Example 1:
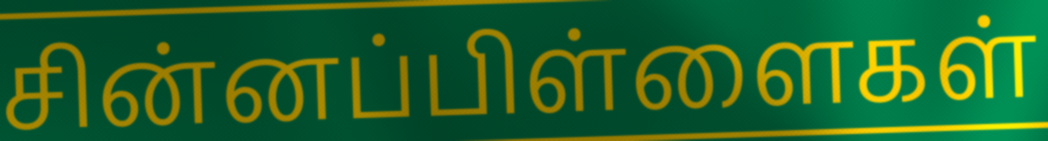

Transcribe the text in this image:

சின்னப்பிள்ளைகள்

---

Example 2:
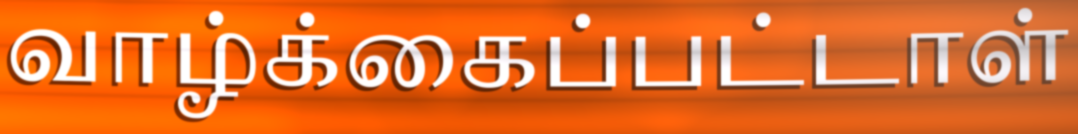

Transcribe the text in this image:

வாழ்க்கைப்பட்டாள்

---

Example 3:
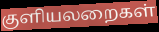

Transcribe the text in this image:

குளியலறைகள்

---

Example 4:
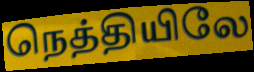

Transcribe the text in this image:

நெத்தியிலே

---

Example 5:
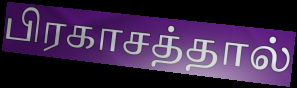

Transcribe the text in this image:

பிரகாசத்தால்